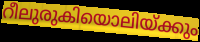
റീലുരുകിയൊലിയ്ക്കും